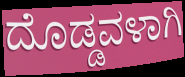
ದೊಡ್ಡವಳಾಗಿ